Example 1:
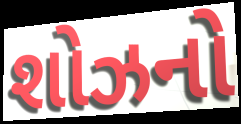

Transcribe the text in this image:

શોઝનો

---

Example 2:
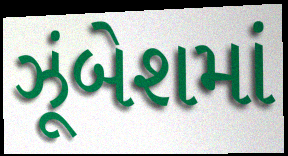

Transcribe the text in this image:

ઝૂંબેશમાં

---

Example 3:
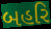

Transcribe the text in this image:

બહરિ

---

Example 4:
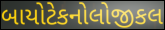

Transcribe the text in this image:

બાયોટેકનોલોજીકલ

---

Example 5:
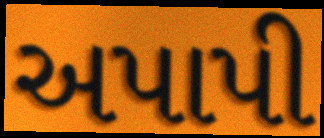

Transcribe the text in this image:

અપાપી